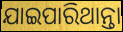
ଯାଇପାରିଥାନ୍ତା